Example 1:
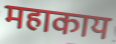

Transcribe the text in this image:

महाकाय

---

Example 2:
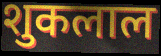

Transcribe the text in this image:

शुकलाल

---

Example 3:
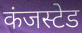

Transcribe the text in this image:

कंजस्टेड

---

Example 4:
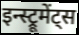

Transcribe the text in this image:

इन्स्ट्रूमेंट्स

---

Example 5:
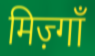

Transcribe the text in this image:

मिज़्गाँ